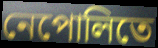
নেপোলিতে